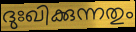
ദുഃഖിക്കുന്നതും